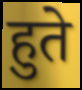
हुते